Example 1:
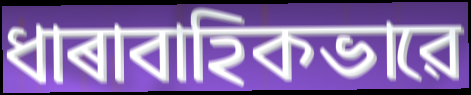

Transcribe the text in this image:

ধাৰাবাহিকভাৱে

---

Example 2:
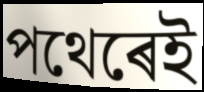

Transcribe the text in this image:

পথেৰেই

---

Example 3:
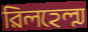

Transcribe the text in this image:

ৱিলহেল্ম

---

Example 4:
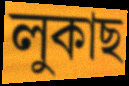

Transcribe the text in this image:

লুকাছ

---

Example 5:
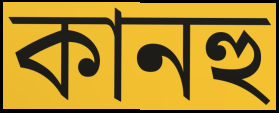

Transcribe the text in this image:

কানহু